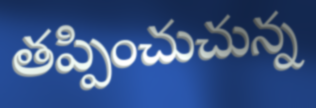
తప్పించుచున్న